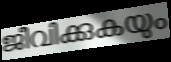
ജീവിക്കുകയും